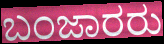
ಬಂಜಾರರು